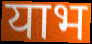
याभ